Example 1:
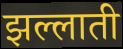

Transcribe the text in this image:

झल्लाती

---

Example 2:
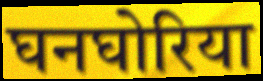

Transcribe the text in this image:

घनघोरिया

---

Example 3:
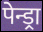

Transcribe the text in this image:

पेन्ड्रा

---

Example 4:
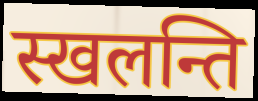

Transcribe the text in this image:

स्खलन्ति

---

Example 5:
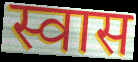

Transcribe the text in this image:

स्वास